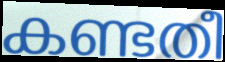
കണ്ടതീ